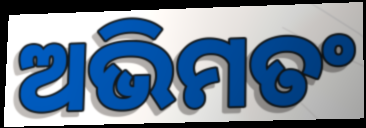
ଅଭିମତଂ